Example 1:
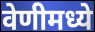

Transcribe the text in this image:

वेणीमध्ये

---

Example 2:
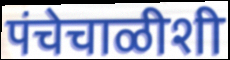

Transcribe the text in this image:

पंचेचाळीशी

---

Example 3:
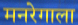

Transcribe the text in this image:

मनरेगाला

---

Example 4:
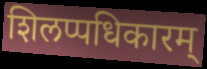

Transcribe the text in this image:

शिलप्पधिकारम्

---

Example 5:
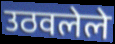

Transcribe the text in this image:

उठवलेले